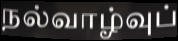
நல்வாழ்வுப்